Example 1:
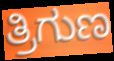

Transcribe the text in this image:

ತ್ರಿಗುಣ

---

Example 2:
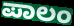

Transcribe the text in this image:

ಪಾಲಂ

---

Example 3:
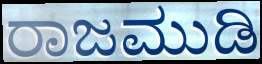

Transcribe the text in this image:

ರಾಜಮುಡಿ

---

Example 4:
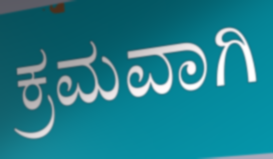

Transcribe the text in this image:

ಕ್ರಮವಾಗಿ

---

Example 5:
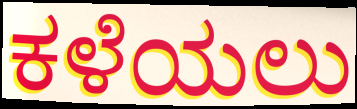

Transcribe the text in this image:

ಕಳೆಯಲು